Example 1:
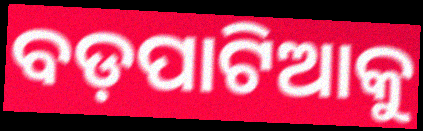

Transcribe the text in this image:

ବଡ଼ପାଟିଆକୁ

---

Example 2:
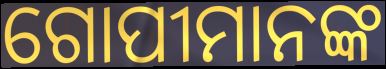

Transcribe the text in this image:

ଗୋପୀମାନଙ୍କ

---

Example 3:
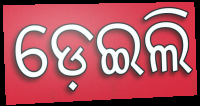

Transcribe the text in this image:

ଡ଼େଇଲି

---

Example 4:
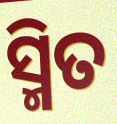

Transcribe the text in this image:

ସ୍ମିତ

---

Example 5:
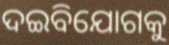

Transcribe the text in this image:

ଦଇବିଯୋଗକୁ